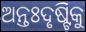
ଅନ୍ତଃଦୃଷ୍ଟିକୁ